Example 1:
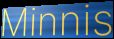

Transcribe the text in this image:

Minnis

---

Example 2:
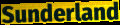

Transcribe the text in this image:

Sunderland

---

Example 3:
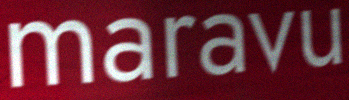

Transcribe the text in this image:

maravu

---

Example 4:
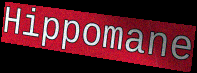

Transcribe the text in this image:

Hippomane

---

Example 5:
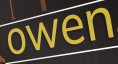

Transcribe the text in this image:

owen